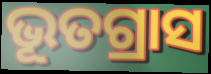
ଭୂତଗ୍ରାସ